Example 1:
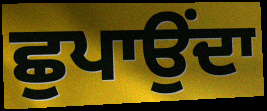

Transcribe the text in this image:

ਛੁਪਾਉਂਦਾ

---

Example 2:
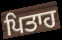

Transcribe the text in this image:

ਪਿਤਾਹ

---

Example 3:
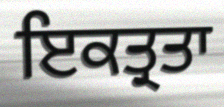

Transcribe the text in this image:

ਇਕਤ੍ਰਤਾ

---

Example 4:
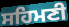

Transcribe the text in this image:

ਸਹਿਮਣੀ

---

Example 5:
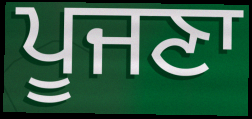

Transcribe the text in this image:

ਪੂਜਣਾ